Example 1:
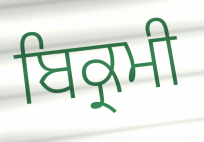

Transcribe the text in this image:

ਬਿਕ੍ਰਮੀ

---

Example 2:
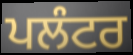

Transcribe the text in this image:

ਪਲੰਟਰ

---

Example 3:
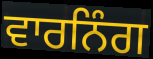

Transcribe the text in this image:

ਵਾਰਨਿੰਗ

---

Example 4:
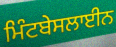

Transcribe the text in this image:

ਮਿੰਟਬੇਸਲਾਈਨ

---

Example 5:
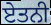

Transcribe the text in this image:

ਏਤਨੀ